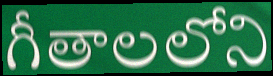
గీతాలలోని